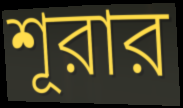
শূরার